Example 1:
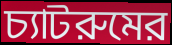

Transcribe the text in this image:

চ্যাটরুমের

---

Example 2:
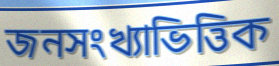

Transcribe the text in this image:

জনসংখ্যাভিত্তিক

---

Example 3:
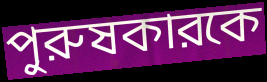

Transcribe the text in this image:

পুরুষকারকে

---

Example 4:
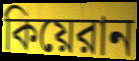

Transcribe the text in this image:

কিয়েরান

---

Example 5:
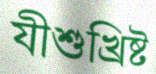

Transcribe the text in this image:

যীশুখ্রিষ্ট